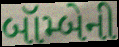
બૉમ્બેની